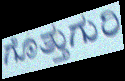
ಗೊತ್ತುಗುರಿ